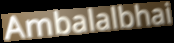
Ambalalbhai